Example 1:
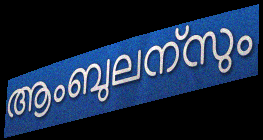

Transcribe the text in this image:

ആംബുലന്സും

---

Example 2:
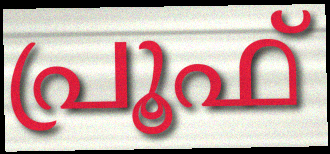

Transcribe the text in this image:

പ്രൂഫ്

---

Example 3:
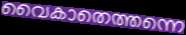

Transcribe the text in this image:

വൈകാതെത്തന്നെ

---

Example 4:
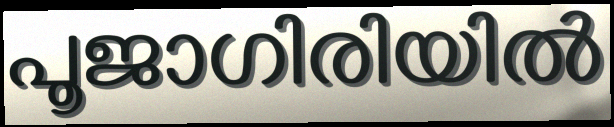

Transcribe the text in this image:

പൂജാഗിരിയിൽ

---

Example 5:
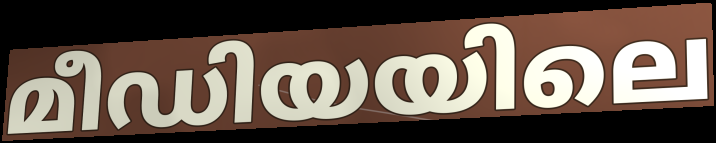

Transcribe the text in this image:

മീഡിയയിലെ